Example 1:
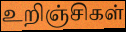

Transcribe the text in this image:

உறிஞ்சிகள்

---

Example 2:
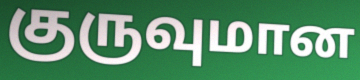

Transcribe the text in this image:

குருவுமான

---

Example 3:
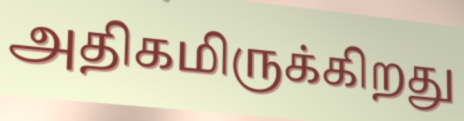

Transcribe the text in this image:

அதிகமிருக்கிறது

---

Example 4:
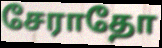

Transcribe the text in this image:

சேராதோ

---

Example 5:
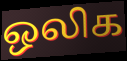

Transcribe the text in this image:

ஒலிக